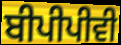
ਬੀਪੀਪੀਵੀ